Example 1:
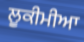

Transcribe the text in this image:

ਲੂਕੀਮੀਆ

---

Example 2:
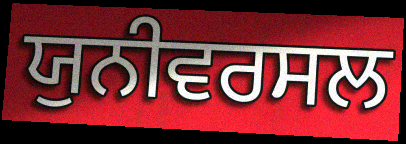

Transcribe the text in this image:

ਯੁਨੀਵਰਸਲ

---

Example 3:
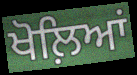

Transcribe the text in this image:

ਖੋਲ਼ਿਆਂ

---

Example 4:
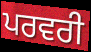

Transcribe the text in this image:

ਪਰਵਰੀ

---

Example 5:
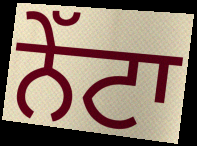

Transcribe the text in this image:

ਨੇੱਟਾ